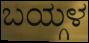
ಬಯ್ಗಳ